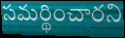
సమర్థించారని